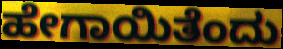
ಹೇಗಾಯಿತೆಂದು